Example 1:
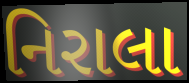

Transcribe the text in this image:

નિરાલા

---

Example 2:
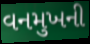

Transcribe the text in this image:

વનમુખની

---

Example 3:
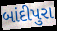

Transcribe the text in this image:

બાંદીપુરા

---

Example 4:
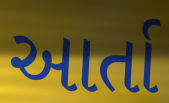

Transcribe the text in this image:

આર્તા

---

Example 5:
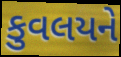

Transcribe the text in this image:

કુવલયને